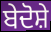
ਬੇਦੋਸ਼ੇ